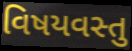
વિષયવસ્તુ